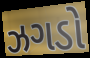
ઝગડો